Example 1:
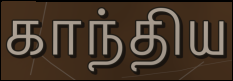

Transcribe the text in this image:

காந்திய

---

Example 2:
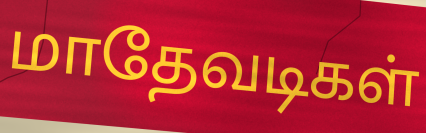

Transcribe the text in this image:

மாதேவடிகள்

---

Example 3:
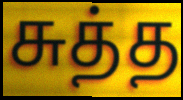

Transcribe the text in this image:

சுத்த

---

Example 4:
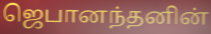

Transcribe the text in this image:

ஜெபானந்தனின்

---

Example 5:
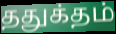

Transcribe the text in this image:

ததுக்தம்